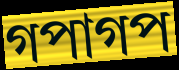
গপাগপ